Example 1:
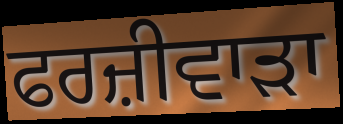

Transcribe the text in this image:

ਫਰਜ਼ੀਵਾੜਾ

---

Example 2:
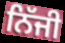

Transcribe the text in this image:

ਨਿੱਜੀ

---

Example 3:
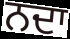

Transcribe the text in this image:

ਨਦਾ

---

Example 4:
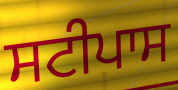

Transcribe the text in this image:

ਸਟੀਪਾਸ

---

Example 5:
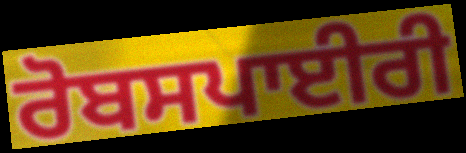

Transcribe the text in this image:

ਰੋਬਸਪਾਈਰੀ